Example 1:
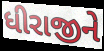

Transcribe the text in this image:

ધીરાજીને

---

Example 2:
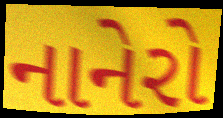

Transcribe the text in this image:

નાનેરો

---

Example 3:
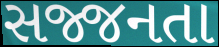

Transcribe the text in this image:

સજ્જનતા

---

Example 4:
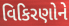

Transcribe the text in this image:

વિકિરણોને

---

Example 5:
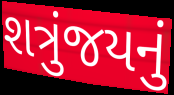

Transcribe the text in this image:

શત્રુંજયનું